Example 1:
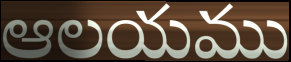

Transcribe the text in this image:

ఆలయము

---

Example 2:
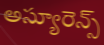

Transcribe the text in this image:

అస్యూరెన్స్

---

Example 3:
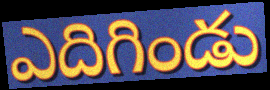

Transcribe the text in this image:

ఎదిగిండు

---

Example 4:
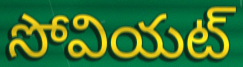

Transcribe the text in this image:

సోవియట్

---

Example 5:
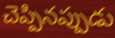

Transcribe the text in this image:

చెప్పినప్పుడు